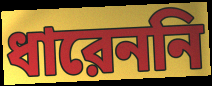
ধারেননি